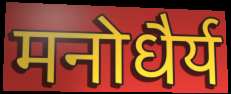
मनोधैर्य